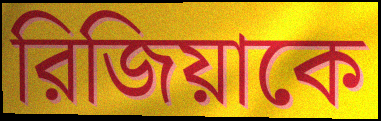
রিজিয়াকে